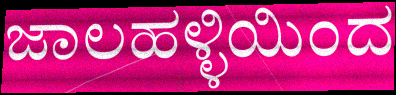
ಜಾಲಹಳ್ಳಿಯಿಂದ